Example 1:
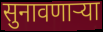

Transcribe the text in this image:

सुनावणाऱ्या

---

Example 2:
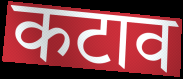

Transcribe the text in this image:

कटाव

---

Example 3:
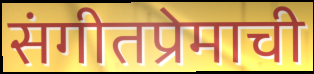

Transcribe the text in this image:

संगीतप्रेमाची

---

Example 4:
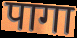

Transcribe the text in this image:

पागा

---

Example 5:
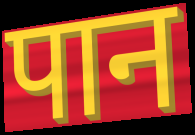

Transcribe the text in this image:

पान